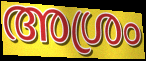
അശ്രം